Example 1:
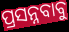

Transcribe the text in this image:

ପ୍ରସନ୍ନବାବୁ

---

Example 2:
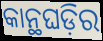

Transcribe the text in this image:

କାନ୍ଥଘଡ଼ିର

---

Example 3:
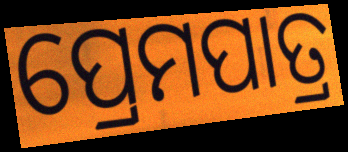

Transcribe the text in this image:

ପ୍ରେମପାତ୍ର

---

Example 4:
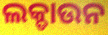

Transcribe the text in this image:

ଲକ୍ଡାଉନ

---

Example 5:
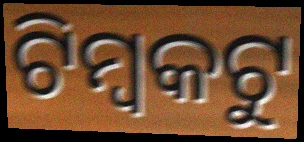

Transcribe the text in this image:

ଟିମ୍ବକଟୁ